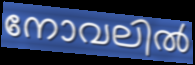
നോവലിൽ